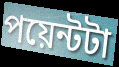
পয়েন্টটা